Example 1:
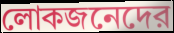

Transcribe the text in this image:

লোকজনেদের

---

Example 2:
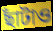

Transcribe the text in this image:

ছাঁটাও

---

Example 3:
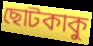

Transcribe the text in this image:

ছোটকাকু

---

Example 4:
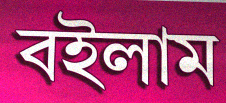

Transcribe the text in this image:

বইলাম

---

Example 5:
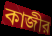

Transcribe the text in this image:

কাজীর